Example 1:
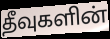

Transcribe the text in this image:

தீவுகளின்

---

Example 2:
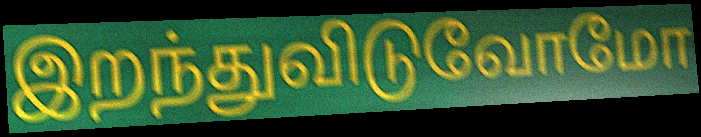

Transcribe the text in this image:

இறந்துவிடுவோமோ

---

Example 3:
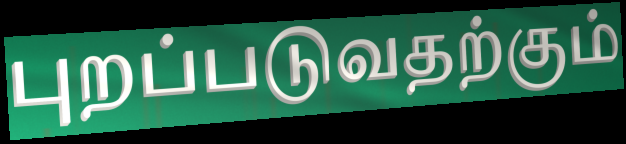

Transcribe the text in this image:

புறப்படுவதற்கும்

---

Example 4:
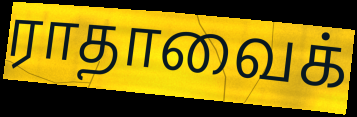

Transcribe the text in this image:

ராதாவைக்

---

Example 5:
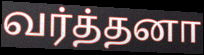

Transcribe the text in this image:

வர்த்தனா